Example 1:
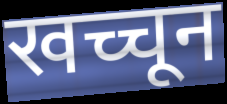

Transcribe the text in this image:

खच्चून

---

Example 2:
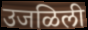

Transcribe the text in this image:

उजळिली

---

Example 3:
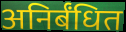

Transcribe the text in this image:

अनिर्बंधित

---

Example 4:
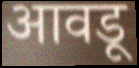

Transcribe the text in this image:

आवडू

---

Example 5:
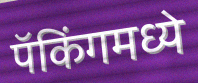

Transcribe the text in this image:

पॅकिंगमध्ये